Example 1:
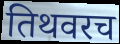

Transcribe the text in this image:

तिथवरच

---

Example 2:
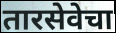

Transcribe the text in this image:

तारसेवेचा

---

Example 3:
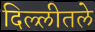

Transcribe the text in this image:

दिल्लीतले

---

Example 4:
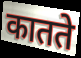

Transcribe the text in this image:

कातते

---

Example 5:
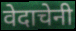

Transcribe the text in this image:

वेदाचेनी